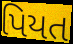
પિયત